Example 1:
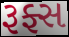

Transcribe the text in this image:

રૂફ્સ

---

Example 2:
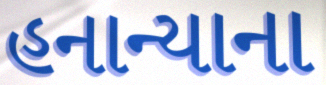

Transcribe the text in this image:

હનાન્યાના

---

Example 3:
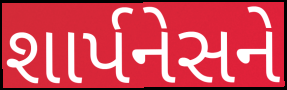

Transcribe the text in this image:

શાર્પનેસને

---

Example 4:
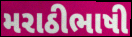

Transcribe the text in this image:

મરાઠીભાષી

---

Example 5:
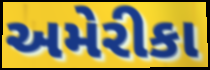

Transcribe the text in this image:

અમેરીકા